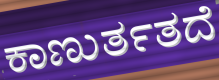
ಕಾಣುರ್ತತದೆ